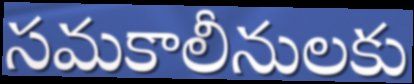
సమకాలీనులకు